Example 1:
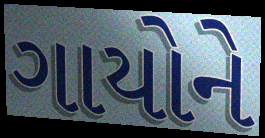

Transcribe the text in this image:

ગાયોને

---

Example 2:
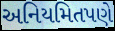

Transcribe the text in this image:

અનિયમિતપણે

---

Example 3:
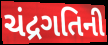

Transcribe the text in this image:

ચંદ્રગતિની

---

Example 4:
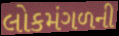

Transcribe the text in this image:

લોકમંગળની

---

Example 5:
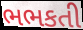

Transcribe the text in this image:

ભભકતી